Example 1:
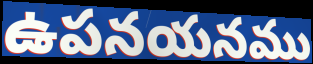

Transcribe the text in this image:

ఉపనయనము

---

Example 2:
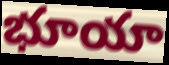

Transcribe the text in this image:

భూయా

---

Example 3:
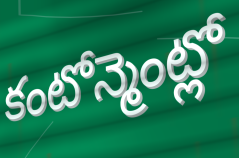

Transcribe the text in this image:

కంటోన్మెంట్లో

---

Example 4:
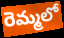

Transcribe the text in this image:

రెమ్మలో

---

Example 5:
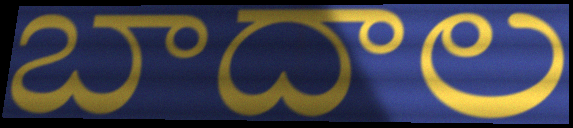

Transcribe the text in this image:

బాదాల